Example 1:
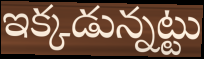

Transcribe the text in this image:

ఇక్కడున్నట్టు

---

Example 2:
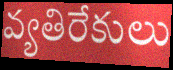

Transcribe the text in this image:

వ్యతిరేకులు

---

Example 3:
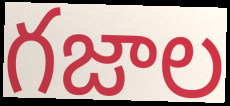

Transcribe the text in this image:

గజాల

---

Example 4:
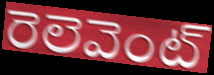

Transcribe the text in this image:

రెలెవెంట్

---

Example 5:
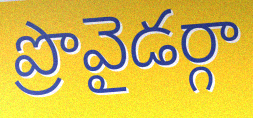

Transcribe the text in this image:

ప్రొవైడర్గా